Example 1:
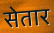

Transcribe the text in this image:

सेतार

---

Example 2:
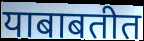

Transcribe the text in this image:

याबाबतीत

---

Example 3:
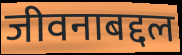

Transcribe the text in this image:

जीवनाबद्दल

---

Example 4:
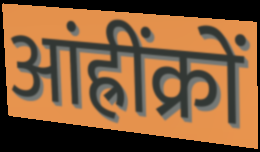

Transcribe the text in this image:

आंह्रींक्रों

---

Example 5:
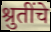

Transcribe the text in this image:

श्रुतींचे